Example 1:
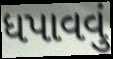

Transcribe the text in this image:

ધપાવવું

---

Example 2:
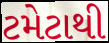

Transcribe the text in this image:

ટમેટાથી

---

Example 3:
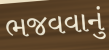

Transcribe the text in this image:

ભજવવાનું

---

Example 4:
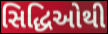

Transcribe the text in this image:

સિદ્ધિઓથી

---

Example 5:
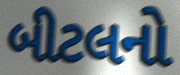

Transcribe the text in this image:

બીટલનો